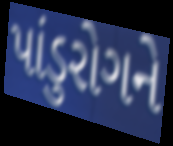
પાંડુરોગને